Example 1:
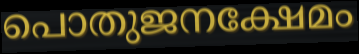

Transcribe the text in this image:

പൊതുജനക്ഷേമം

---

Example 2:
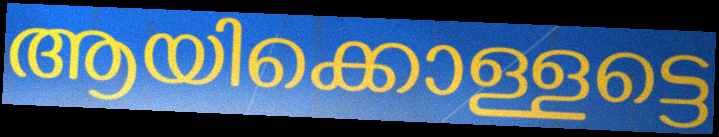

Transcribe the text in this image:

ആയിക്കൊള്ളട്ടെ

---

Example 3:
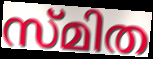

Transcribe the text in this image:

സ്മിത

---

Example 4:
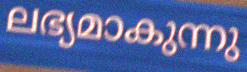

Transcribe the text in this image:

ലഭ്യമാകുന്നു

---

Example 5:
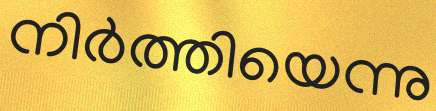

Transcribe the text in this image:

നിർത്തിയെന്നു